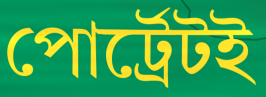
পোর্ট্রেটই